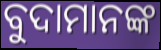
ବୁଦାମାନଙ୍କ